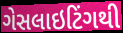
ગેસલાઇટિંગથી